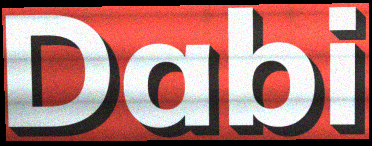
Dabi